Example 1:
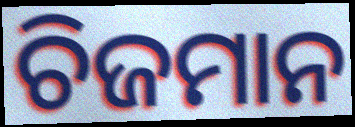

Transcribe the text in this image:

ଚିଜମାନ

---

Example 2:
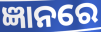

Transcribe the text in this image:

ଜ୍ଞାନରେ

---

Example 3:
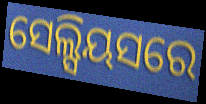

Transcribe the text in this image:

ସେଲ୍ସିୟସରେ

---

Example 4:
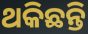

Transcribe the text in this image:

ଥକିଛନ୍ତି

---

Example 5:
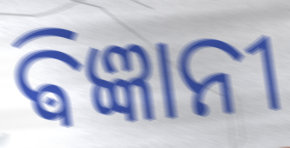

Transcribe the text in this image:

ଵିଜ୍ଞାନୀ